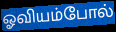
ஓவியம்போல்